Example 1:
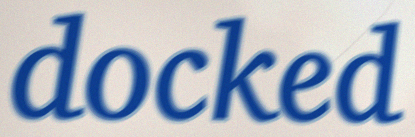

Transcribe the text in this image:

docked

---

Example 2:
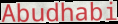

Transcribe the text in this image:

Abudhabi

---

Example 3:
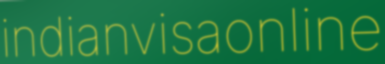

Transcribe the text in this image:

indianvisaonline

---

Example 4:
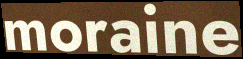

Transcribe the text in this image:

moraine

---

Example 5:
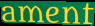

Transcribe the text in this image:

ament